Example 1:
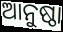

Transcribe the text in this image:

ଆନୁଷ୍ଠା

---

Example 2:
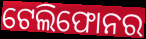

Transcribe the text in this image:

ଟେଲିଫୋନର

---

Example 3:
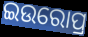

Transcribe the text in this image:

ଇଉରୋପ୍ର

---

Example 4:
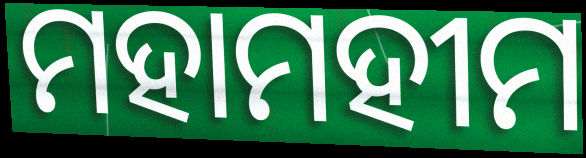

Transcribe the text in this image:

ମହାମହୀମ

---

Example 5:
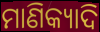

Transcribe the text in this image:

ମାଣିକ୍ୟାଦି